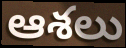
ఆశలు